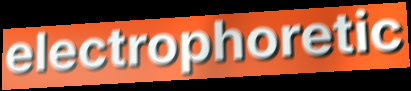
electrophoretic